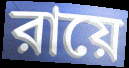
রায়ে